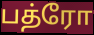
பத்ரோ